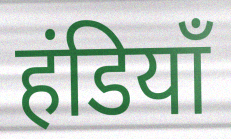
हंडियाँ